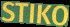
STIKO